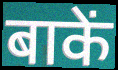
बाकें